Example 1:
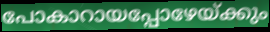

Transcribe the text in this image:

പോകാറായപ്പോഴേയ്ക്കും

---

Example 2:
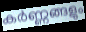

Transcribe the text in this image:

കർണ്ണങ്ങളും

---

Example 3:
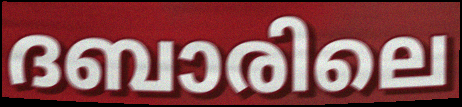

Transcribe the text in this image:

ദബാരിലെ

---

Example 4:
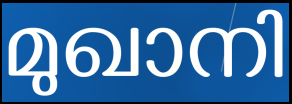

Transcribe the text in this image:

മുഖാനി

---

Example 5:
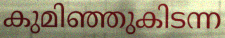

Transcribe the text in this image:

കുമിഞ്ഞുകിടന്ന